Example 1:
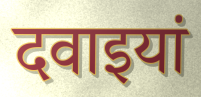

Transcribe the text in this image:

दवाइयां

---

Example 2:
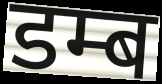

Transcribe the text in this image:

डम्ब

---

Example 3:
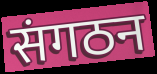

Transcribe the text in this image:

संगठन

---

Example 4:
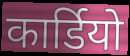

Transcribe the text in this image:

कार्डियो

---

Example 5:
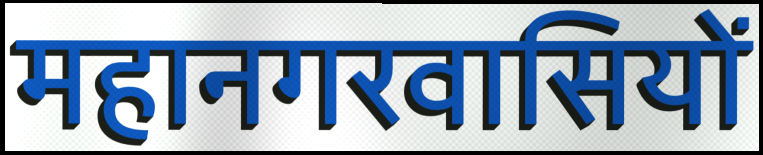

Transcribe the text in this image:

महानगरवासियों